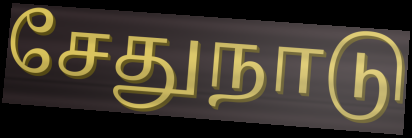
சேதுநாடு